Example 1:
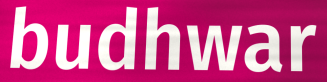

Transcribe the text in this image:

budhwar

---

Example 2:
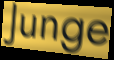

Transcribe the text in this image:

Junge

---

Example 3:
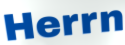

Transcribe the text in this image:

Herrn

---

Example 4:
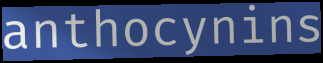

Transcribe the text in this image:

anthocynins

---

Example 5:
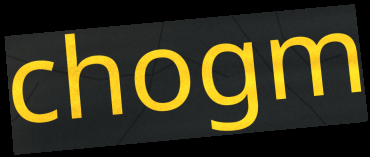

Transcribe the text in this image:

chogm